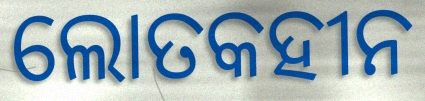
ଲୋତକହୀନ